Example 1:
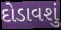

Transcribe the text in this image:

દોડાવશું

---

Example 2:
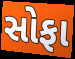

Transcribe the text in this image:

સોફા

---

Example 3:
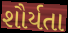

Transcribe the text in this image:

શૌર્યતા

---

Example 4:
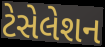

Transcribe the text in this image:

ટેસેલેશન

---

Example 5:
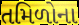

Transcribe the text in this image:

તમિળોના